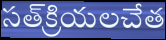
సత్‌క్రియలచేత